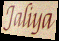
Jaliya